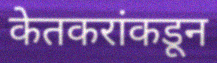
केतकरांकडून